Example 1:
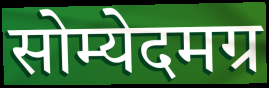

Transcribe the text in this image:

सोम्येदमग्र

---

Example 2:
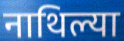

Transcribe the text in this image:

नाथिल्या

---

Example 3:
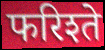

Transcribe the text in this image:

फरिश्ते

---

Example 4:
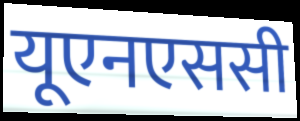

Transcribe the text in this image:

यूएनएससी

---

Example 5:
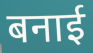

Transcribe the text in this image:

बनाई